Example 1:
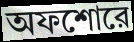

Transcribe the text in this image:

অফশোরে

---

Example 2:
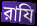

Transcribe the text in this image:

রাযি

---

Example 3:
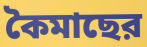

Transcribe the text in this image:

কৈমাছের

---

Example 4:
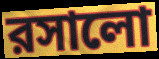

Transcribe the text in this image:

রসালো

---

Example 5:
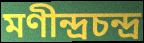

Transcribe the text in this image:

মণীন্দ্রচন্দ্র